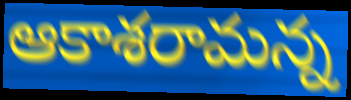
ఆకాశరామన్న